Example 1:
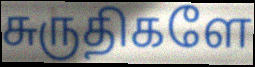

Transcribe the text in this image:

சுருதிகளே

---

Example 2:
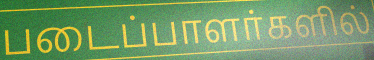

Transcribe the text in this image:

படைப்பாளர்களில்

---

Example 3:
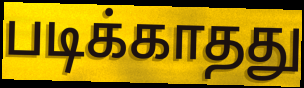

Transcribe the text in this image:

படிக்காதது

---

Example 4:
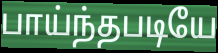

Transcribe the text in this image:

பாய்ந்தபடியே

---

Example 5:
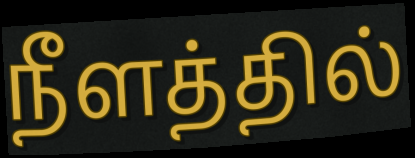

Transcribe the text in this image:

நீளத்தில்